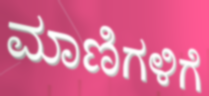
ಮಾಣಿಗಳಿಗೆ